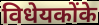
विधेयकोंके